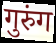
गुरुंग